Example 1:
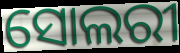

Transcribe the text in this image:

ସୋଲରୀ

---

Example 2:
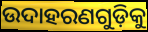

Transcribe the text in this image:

ଉଦାହରଣଗୁଡ଼ିକୁ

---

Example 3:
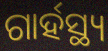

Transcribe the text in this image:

ଗାର୍ହସ୍ଥ୍ୟ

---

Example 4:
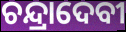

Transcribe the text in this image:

ଚନ୍ଦ୍ରାଦେବୀ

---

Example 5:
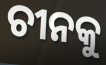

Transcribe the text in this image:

ଚୀନକୁ